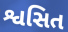
શ્વસિત